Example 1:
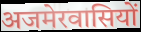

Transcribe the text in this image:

अजमेरवासियों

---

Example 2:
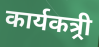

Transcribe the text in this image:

कार्यकत्र्री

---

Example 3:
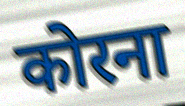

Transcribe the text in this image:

कोरना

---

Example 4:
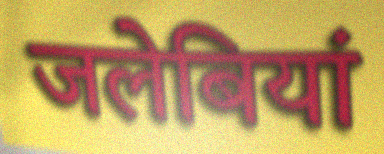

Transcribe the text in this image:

जलेबियां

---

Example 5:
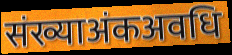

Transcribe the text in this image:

संख्याअंकअवधि